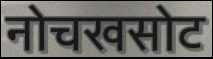
नोचखसोट